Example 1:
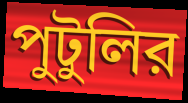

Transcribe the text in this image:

পুটুলির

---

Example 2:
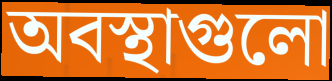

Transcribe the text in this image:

অবস্থাগুলো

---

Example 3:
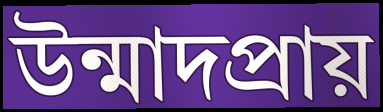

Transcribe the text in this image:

উন্মাদপ্রায়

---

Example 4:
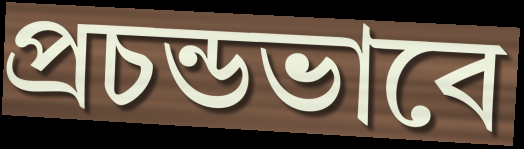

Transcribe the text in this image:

প্রচন্ডভাবে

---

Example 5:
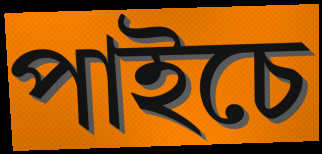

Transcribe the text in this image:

পাইচে